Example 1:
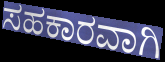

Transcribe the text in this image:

ಸಹಕಾರವಾಗಿ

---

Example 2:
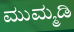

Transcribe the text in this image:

ಮುಮ್ಮಡಿ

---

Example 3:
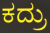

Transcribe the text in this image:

ಕದ್ರು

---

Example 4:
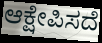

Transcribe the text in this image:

ಆಕ್ಷೇಪಿಸದೆ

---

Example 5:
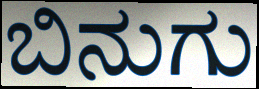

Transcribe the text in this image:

ಬಿನುಗು